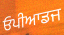
ਓਪੀਆਡਜ